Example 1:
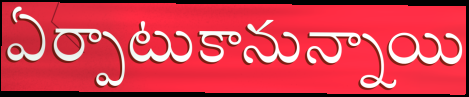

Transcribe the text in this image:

ఏర్పాటుకానున్నాయి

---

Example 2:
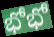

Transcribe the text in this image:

భోభో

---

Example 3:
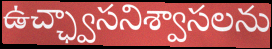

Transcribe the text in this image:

ఉచ్ఛ్వాసనిశ్వాసలను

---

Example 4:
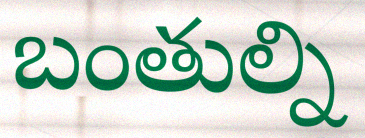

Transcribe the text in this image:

బంతుల్ని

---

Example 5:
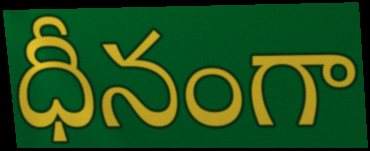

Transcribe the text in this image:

ధీనంగా